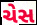
ચેસ